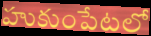
హుకుంపేటలో